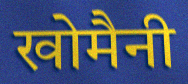
खोमैनी